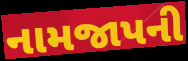
નામજાપની